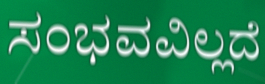
ಸಂಭವವಿಲ್ಲದೆ